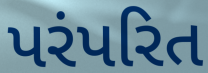
પરંપરિત